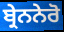
ਬ੍ਰੇਨਨੇਰੋ